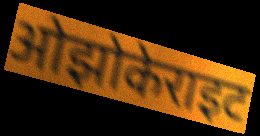
ओझोकेराइट